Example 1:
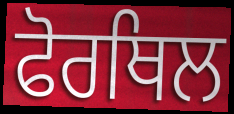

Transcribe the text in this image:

ਫੋਰਥਿਲ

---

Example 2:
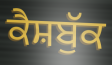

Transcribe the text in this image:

ਕੈਸ਼ਬੁੱਕ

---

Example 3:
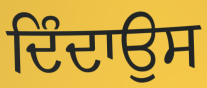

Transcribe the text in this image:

ਦਿੰਦਾਉਸ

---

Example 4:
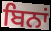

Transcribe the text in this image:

ਬਿਨਾਂ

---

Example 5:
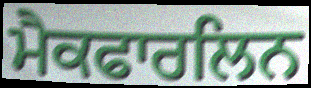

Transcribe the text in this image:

ਮੈਕਫਾਰਲਿਨ